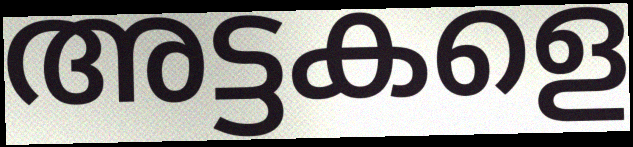
അട്ടകളെ